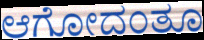
ಆಗೋದಂತೂ